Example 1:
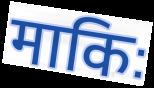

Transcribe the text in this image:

माकिः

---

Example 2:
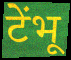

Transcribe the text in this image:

टेंभू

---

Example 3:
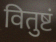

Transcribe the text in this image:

वितुष्टं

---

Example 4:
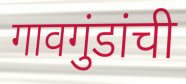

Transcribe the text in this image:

गावगुंडांची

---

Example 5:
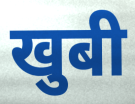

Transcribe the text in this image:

खुबी